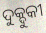
ଦୁକ୍ଦୁକୀ